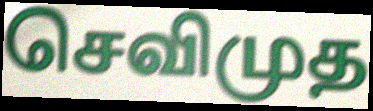
செவிமுத